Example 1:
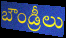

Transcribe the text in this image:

బౌండ్రీలు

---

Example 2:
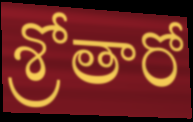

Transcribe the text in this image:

శ్రోతారో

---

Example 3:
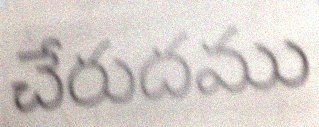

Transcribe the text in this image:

చేరుదము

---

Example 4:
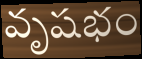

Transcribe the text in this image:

వృషభం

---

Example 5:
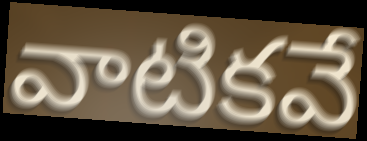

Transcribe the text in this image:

వాటికవే